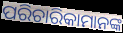
ପରିଚାରିକାମାନଙ୍କ